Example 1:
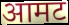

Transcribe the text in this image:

आमट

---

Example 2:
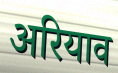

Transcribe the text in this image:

अरियाव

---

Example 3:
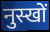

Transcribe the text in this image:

नुस्खों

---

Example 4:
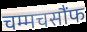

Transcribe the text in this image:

चम्मचसौंफ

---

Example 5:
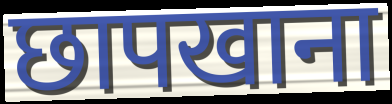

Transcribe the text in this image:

छापखाना